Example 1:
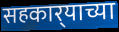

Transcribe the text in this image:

सहकार्‍याच्या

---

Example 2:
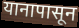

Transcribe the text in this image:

यानापासून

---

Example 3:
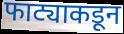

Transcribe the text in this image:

फाट्याकडून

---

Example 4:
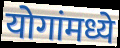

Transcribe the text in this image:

योगांमध्ये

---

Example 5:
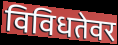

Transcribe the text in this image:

विविधतेवर